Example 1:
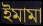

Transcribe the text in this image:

ইমামা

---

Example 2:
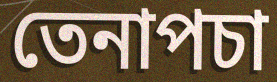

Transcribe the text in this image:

তেনাপচা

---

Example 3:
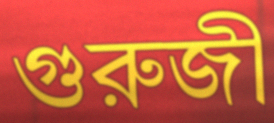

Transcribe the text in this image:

গুরুজী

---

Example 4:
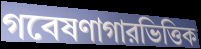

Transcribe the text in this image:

গবেষণাগারভিত্তিক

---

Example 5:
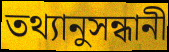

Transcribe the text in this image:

তথ্যানুসন্ধানী